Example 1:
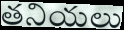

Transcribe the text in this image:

తనియలు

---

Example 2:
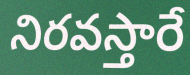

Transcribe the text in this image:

నిరవస్తారే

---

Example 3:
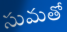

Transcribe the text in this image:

సుమతో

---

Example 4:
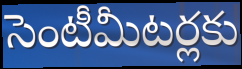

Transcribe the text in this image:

సెంటీమీటర్లకు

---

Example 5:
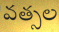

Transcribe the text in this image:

వత్సల